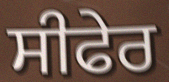
ਸੀਫੇਰ